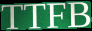
TTFB